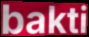
bakti